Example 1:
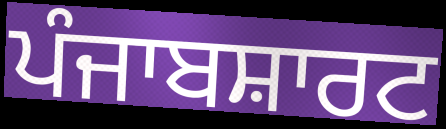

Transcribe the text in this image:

ਪੰਜਾਬਸ਼ਾਰਟ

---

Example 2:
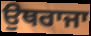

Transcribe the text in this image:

ਉਥਰਾਜਾ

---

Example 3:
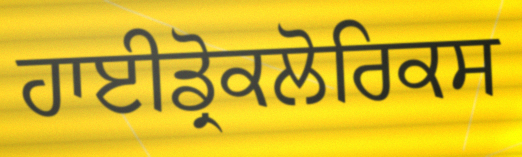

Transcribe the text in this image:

ਹਾਈਡ੍ਰੋਕਲੋਰਿਕਸ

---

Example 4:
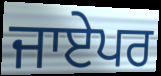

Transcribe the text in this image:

ਜਾਏਪਰ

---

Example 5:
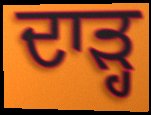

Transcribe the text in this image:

ਦਾੜ੍ਹ